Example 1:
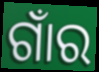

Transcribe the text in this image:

ଗାଁର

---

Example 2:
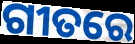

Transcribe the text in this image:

ଗୀତରେ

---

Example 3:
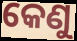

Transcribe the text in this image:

କେଣୁ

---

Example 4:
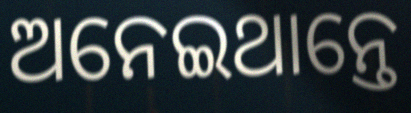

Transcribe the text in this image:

ଅନେଇଥାନ୍ତେ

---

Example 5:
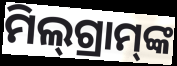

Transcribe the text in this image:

ମିଲ୍‌ଗ୍ରାମ୍‌ଙ୍କ